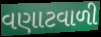
વણાટવાળી